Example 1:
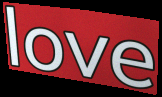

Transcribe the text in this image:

love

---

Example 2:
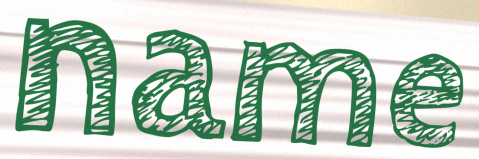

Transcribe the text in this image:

name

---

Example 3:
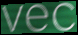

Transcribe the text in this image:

vec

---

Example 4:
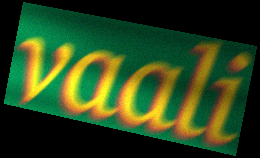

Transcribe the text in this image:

vaali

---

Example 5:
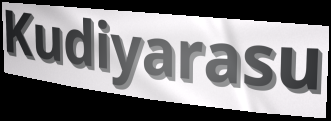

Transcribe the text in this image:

Kudiyarasu